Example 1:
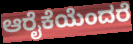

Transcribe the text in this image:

ಆರೈಕೆಯೆಂದರೆ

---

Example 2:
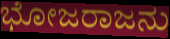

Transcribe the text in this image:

ಭೋಜರಾಜನು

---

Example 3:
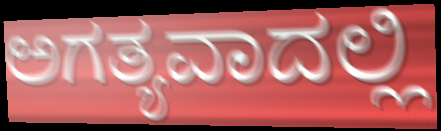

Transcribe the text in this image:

ಅಗತ್ಯವಾದಲ್ಲಿ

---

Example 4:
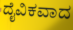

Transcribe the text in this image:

ದೈವಿಕವಾದ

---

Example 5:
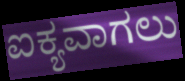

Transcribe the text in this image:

ಐಕ್ಯವಾಗಲು